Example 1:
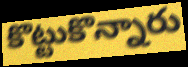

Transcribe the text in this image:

కొట్టుకొన్నారు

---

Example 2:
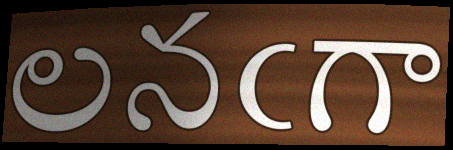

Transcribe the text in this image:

లనఁగా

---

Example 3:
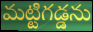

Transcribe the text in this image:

మట్టిగడ్డను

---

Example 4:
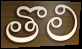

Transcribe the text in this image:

తొలి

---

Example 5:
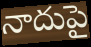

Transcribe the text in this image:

నాదుపై